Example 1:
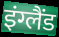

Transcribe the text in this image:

इंग्‍लैंड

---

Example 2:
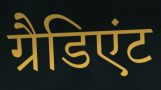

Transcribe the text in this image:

ग्रैडिएंट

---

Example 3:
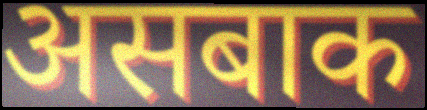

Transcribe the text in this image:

असबाक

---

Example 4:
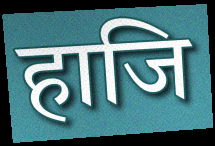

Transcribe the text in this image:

हाजि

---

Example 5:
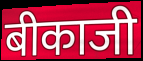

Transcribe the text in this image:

बीकाजी